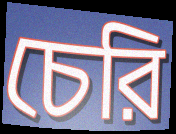
চেরি